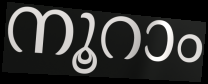
നൂറാം